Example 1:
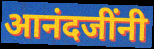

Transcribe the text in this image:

आनंदजींनी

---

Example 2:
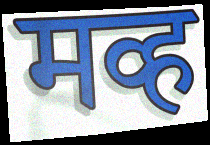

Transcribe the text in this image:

मव्ह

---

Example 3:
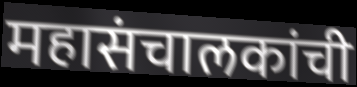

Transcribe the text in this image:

महासंचालकांची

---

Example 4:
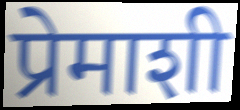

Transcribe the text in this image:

प्रेमाशी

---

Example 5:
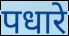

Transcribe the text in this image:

पधारे